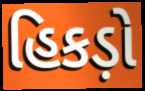
હિકડ઼ો